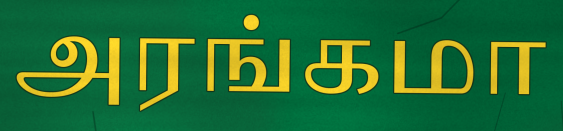
அரங்கமா